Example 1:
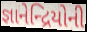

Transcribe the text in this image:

જ્ઞાનેન્દ્રિયોની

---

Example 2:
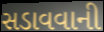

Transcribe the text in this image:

સડાવવાની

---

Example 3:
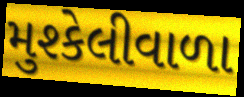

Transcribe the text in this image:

મુશ્કેલીવાળા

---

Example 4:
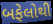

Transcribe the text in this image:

બફેલોથી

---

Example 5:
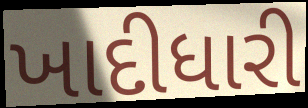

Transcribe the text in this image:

ખાદીધારી